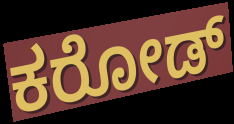
ಕರೋಡ್